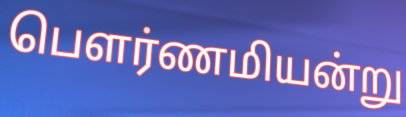
பெளர்ணமியன்று